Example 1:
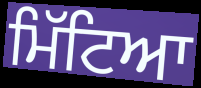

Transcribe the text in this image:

ਮਿੱਟਿਆ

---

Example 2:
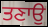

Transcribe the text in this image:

ਤਣਾਉ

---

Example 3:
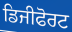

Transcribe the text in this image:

ਡਿਜੀਫੋਰਟ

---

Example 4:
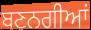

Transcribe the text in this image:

ਬਣਨਗੀਆਂ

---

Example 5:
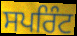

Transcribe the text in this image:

ਸਪਰਿੰਟ